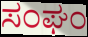
ಸಂಘಂ